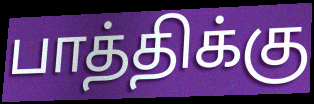
பாத்திக்கு